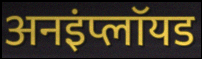
अनइंप्लॉयड